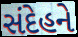
સંદેહને